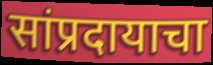
सांप्रदायाचा